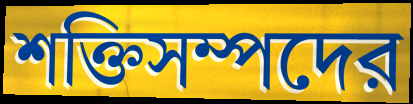
শক্তিসম্পদের